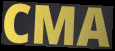
CMA